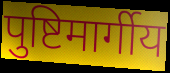
पुष्टिमार्गीय